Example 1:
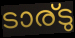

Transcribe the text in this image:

ടാര്ടു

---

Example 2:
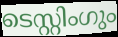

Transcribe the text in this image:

ടെസ്റ്റിംഗും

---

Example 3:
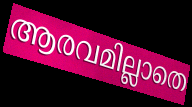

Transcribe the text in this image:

ആരവമില്ലാതെ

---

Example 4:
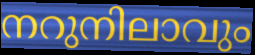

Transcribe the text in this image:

നറുനിലാവും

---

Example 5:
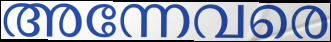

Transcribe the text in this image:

അന്നേവരെ